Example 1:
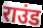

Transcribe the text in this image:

राउंड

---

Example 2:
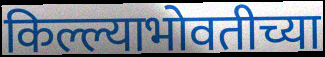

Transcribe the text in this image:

किल्ल्याभोवतीच्या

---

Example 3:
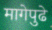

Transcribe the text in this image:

मागेपुढे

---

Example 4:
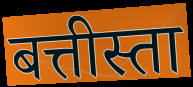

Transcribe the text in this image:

बत्तीस्ता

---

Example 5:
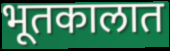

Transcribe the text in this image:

भूतकालात